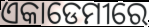
ଏକାଡେମୀରେ